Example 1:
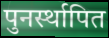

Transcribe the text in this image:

पुनर्स्‍थापित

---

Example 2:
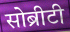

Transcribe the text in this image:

सोब्रीटी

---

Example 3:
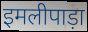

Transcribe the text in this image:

इमलीपाड़ा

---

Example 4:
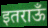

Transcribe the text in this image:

इतराऊँ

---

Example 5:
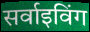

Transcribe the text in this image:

सर्वाइविंग